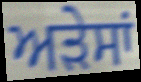
ਅੜੇਸਾਂ